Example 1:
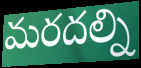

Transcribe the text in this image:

మరదల్ని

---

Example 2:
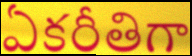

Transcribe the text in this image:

ఏకరీతిగా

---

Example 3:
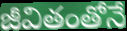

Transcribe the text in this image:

జీవితంతోనే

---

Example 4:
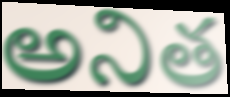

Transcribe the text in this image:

అనిత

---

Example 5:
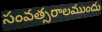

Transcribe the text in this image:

సంవత్సరాలముందు